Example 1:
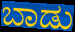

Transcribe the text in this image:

ಬಾಡು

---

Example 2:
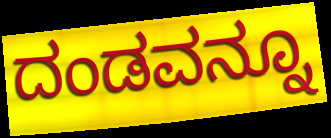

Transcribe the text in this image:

ದಂಡವನ್ನೂ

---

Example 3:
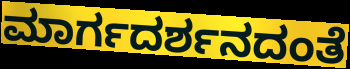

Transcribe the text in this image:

ಮಾರ್ಗದರ್ಶನದಂತೆ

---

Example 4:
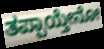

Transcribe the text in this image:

ತಪ್ಪಾಯ್ತೇನೋ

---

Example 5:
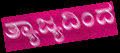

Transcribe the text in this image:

ತ್ಯಾಜ್ಯದಿಂದ